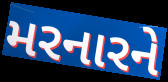
મરનારને